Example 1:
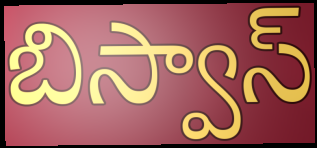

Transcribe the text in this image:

బిస్వాస్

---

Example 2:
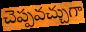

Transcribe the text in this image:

చెప్పవచ్చుగా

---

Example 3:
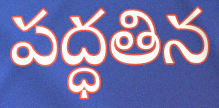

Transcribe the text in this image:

పద్ధతిన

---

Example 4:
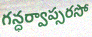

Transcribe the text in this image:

గన్ధర్వాప్సరసో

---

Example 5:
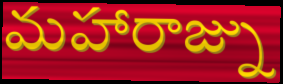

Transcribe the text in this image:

మహారాజ్ను